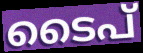
ടൈപ്